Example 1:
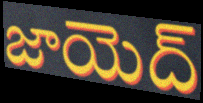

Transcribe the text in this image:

జాయెద్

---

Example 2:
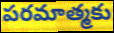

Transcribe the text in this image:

పరమాత్మకు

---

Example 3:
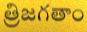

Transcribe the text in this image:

త్రిజగతాం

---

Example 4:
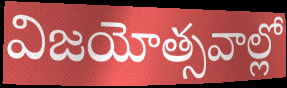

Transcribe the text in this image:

విజయోత్సవాల్లో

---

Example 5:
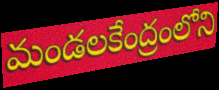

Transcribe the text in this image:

మండలకేంద్రంలోని